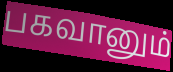
பகவானும்